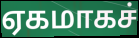
ஏகமாகச்